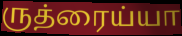
ருத்ரைய்யா